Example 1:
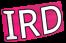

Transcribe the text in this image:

IRD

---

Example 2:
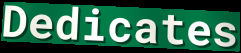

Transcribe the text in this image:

Dedicates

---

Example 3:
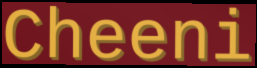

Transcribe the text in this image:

Cheeni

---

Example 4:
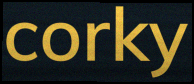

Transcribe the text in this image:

corky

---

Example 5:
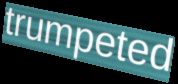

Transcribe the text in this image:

trumpeted